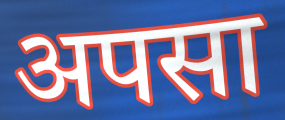
अपसा